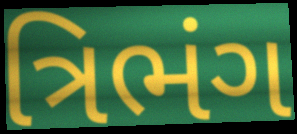
ત્રિભંગ